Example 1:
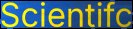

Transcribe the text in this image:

Scientifc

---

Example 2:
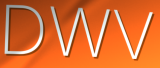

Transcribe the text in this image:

DWV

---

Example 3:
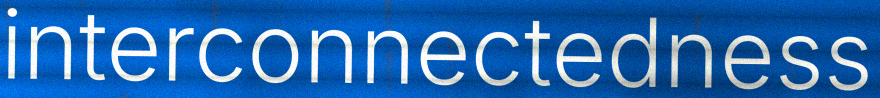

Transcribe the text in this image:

interconnectedness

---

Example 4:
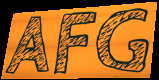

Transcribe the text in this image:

AFG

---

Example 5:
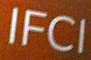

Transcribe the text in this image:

IFCI